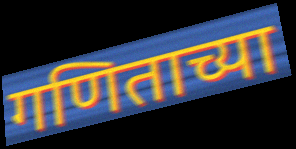
गणिताच्या